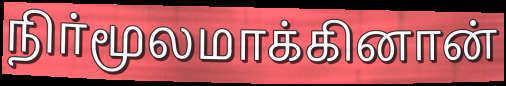
நிர்மூலமாக்கினான்